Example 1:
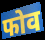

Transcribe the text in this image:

फोव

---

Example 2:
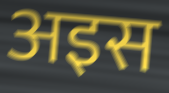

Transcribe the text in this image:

अइस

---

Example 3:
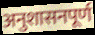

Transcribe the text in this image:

अनुशासनपूर्ण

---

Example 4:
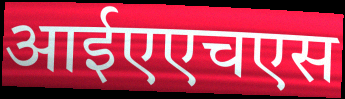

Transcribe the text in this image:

आईएएचएस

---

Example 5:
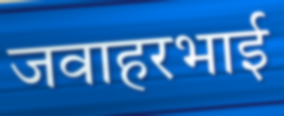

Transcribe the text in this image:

जवाहरभाई